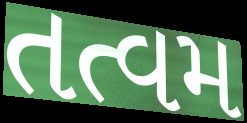
તત્વમ